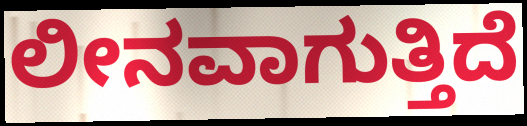
ಲೀನವಾಗುತ್ತಿದೆ